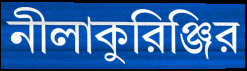
নীলাকুরিঞ্জির